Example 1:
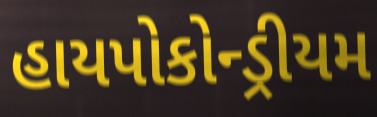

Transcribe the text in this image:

હાયપોકોન્ડ્રીયમ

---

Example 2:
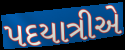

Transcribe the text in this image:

પદયાત્રીએ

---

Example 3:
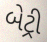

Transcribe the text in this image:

બેટ્રી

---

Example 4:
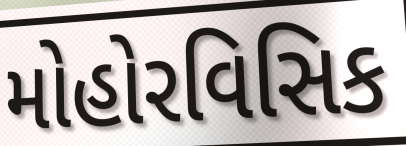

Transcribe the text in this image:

મોહોરવિસિક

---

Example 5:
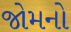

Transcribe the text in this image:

જોમનો